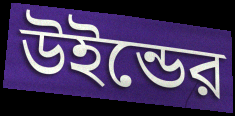
উইন্ডের